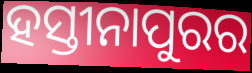
ହସ୍ତୀନାପୁରର